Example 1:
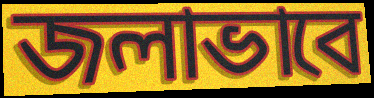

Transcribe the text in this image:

জলাভাবে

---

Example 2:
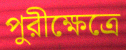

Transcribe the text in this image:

পুরীক্ষেত্রে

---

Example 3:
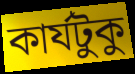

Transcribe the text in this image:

কার্যটুকু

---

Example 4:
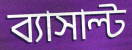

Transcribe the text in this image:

ব্যাসাল্ট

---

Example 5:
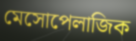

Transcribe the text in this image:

মেসোপেলাজিক